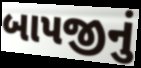
બાપજીનું